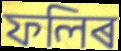
ফলিৰ